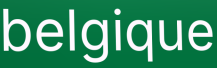
belgique